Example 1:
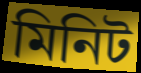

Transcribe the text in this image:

মিনিট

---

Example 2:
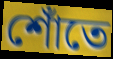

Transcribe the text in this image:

শোঁতে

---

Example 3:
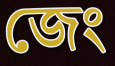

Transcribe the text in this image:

জেং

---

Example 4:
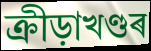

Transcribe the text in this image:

ক্ৰীড়াখণ্ডৰ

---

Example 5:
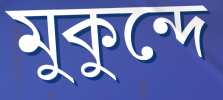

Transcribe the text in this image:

মুকুন্দে